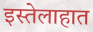
इस्तेलाहात